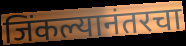
जिंकल्यानंतरचा